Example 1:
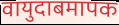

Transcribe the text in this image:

वायुदाबमापक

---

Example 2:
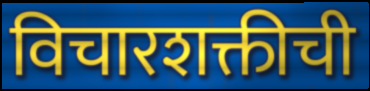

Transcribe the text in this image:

विचारशक्तीची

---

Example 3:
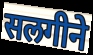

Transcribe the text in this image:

सलगीने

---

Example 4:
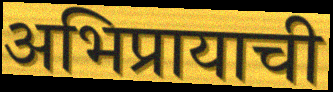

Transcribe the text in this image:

अभिप्रायाची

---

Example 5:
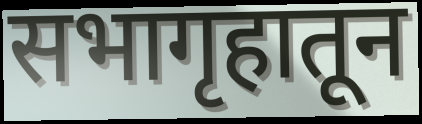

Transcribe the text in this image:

सभागृहातून